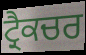
ਟ੍ਰੈਕਚਰ